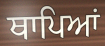
ਥਾਪਿਆਂ